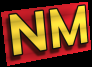
NM